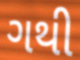
ગથી